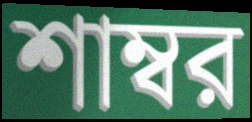
শাম্বর